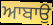
ਆਬਾਉ